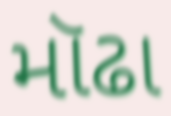
મૉઢા